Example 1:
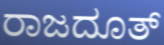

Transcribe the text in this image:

ರಾಜದೂತ್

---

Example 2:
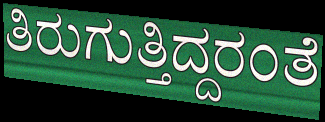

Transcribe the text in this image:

ತಿರುಗುತ್ತಿದ್ದರಂತೆ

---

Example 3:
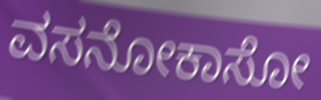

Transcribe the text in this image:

ವಸನೋಕಾಸೋ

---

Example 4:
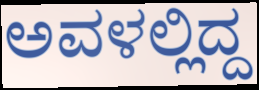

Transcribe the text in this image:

ಅವಳಲ್ಲಿದ್ದ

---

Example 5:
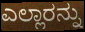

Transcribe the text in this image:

ಎಲ್ಲಾರನ್ನು